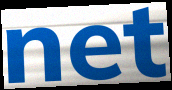
net